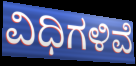
ವಿಧಿಗಳಿವೆ